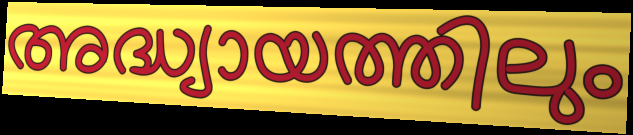
അദ്ധ്യായത്തിലും